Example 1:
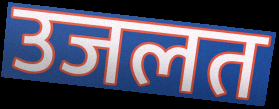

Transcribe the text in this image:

उजलत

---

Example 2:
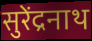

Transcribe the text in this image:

सुरेंद्रनाथ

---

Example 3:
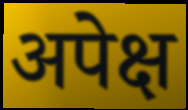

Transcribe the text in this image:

अपेक्ष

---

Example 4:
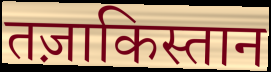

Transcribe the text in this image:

तज़ाकिस्तान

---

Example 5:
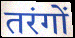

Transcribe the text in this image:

तरंगों